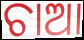
ଚାଆ